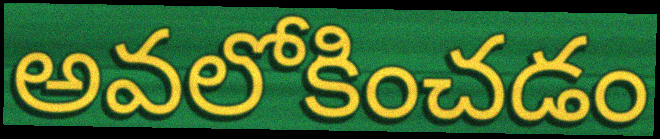
అవలోకించడం